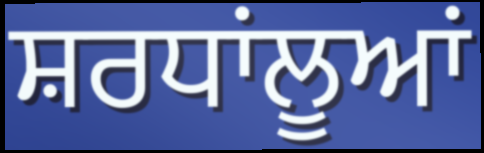
ਸ਼ਰਧਾਂਲੂਆਂ